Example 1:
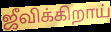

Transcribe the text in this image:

ஜீவிக்கிறாய்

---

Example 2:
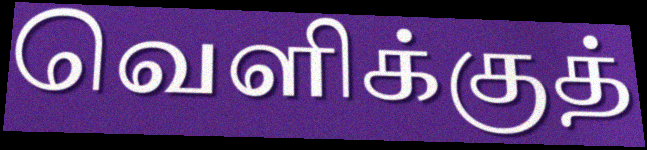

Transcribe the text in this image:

வெளிக்குத்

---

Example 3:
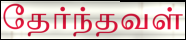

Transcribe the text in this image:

தேர்ந்தவள்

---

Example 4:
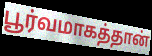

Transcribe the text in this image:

பூர்வமாகத்தான்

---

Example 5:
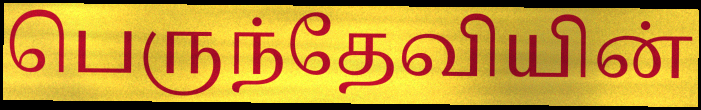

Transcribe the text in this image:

பெருந்தேவியின்